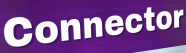
Connector